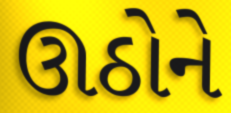
ઊઠોને